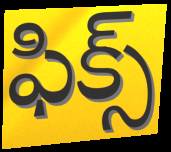
ఫిక్స్